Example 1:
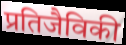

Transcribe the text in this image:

प्रतिजैविकी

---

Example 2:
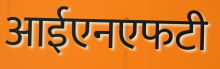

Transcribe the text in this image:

आईएनएफटी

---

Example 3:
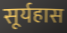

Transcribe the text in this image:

सूर्यहास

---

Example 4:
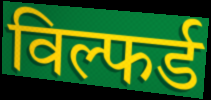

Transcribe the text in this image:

विल्फर्ड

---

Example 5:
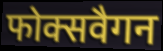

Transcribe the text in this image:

फोक्सवैगन